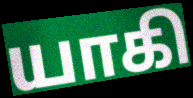
யாகி